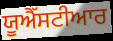
ਯੂਐੱਸਟੀਆਰ